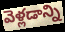
వెళ్లడాన్ని